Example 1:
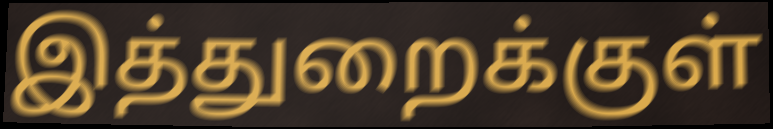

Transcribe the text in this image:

இத்துறைக்குள்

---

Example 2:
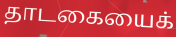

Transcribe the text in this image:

தாடகையைக்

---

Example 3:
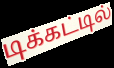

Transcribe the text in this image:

டிக்கட்டில்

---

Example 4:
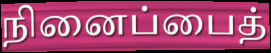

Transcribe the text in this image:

நினைப்பைத்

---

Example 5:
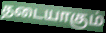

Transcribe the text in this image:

தடையாகும்